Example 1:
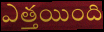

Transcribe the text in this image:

ఎత్తయింది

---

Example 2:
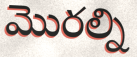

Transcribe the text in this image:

మొరల్ని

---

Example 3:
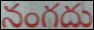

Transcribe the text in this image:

నంగదు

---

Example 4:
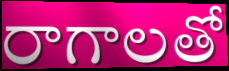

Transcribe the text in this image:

రాగాలతో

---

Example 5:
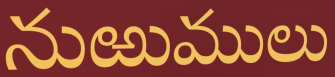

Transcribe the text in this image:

నుఱుములు